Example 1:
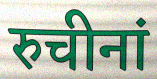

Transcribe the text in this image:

रुचीनां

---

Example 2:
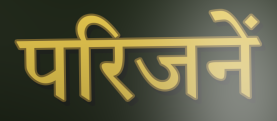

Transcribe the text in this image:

परिजनें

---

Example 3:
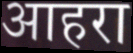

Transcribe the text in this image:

आहरा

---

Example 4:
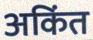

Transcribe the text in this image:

अकिंत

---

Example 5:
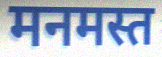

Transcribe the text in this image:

मनमस्त